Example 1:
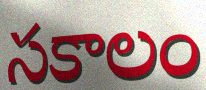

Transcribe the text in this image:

సకాలం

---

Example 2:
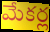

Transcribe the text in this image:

మేకర్ల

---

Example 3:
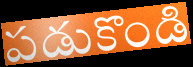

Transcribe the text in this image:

పడుకొండి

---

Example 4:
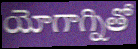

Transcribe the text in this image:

యోగాగ్నితో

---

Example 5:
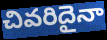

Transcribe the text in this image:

చివరిదైనా